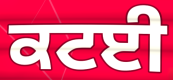
ਕਟਈ